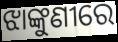
ଝାଙ୍କୁଣୀରେ